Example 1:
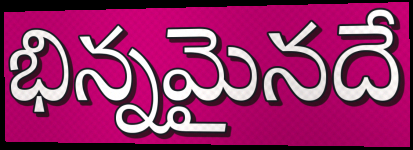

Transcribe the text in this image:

భిన్నమైనదే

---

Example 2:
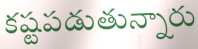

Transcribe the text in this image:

కష్టపడుతున్నారు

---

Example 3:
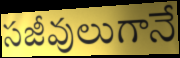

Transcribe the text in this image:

సజీవులుగానే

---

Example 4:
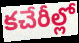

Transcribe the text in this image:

కచేరీల్లో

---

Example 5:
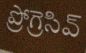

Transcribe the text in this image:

ప్రోగ్రెసివ్